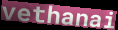
vethanai